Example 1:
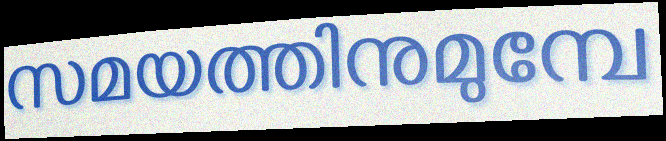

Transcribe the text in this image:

സമയത്തിനുമുമ്പേ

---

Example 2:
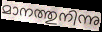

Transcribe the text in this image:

മാനത്തുനിന്നു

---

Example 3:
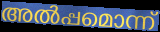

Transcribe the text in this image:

അൽപ്പമൊന്ന്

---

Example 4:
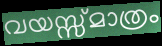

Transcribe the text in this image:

വയസ്സ്മാത്രം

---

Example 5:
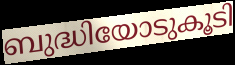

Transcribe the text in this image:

ബുദ്ധിയോടുകൂടി